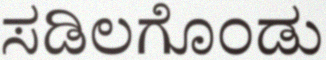
ಸಡಿಲಗೊಂಡು